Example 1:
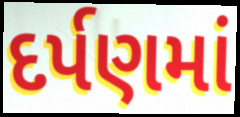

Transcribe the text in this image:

દર્પણમાં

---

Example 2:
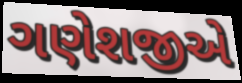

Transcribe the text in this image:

ગણેશજીએ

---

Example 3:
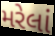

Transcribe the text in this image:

મરેલાં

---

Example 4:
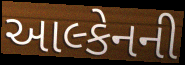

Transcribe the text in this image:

આલ્કેનની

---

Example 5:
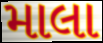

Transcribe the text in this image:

માલા